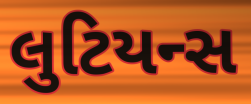
લુટિયન્સ